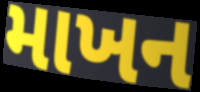
માખન